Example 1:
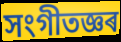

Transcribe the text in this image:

সংগীতজ্ঞৰ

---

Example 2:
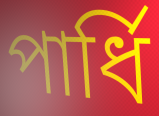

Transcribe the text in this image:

পাৰ্ধি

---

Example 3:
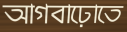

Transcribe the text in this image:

আগবাঢ়োতে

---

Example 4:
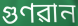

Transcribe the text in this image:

গুণৱান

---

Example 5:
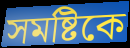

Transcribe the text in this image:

সমষ্টিকে